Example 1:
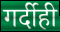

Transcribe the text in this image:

गर्दीही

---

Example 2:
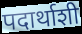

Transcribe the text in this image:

पदार्थाशी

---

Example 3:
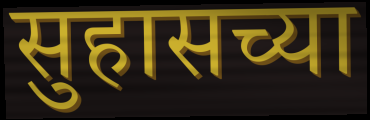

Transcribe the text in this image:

सुहासच्या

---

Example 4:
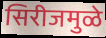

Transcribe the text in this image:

सिरीजमुळे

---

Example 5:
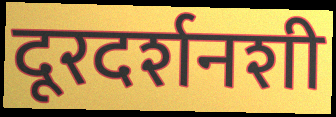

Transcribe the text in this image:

दूरदर्शनशी